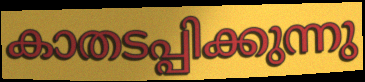
കാതടപ്പിക്കുന്നു